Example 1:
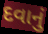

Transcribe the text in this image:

દવાનું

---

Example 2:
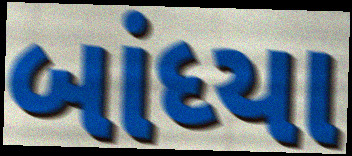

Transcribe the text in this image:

બાંધ્યા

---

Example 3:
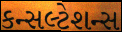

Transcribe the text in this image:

કન્સલ્ટેશન્સ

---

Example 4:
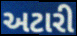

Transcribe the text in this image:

અટારી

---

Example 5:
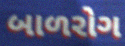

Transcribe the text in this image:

બાળરોગ